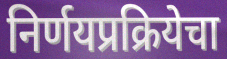
निर्णयप्रक्रियेचा